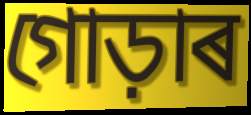
গোড়াৰ